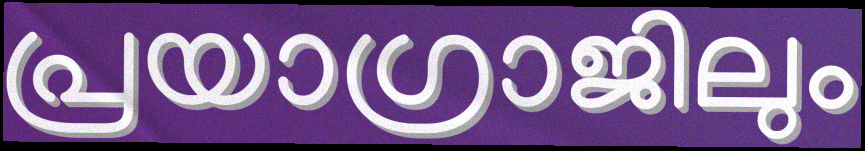
പ്രയാഗ്രാജിലും